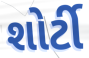
શોર્ટી